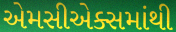
એમસીએક્સમાંથી